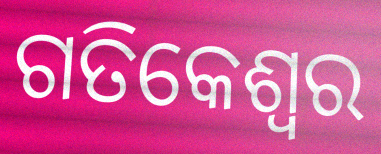
ଗତିକେଶ୍ବର